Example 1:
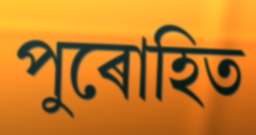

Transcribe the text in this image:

পুৰোহিত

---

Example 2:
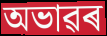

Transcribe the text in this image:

অভাৱৰ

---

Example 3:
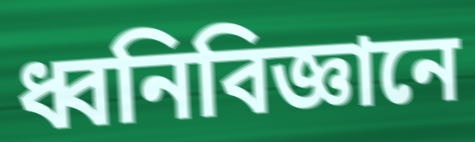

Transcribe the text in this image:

ধ্বনিবিজ্ঞানে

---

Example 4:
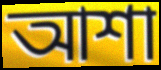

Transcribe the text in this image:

আশা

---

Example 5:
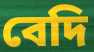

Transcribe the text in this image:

বেদি